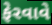
ફેરવાવે